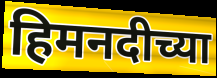
हिमनदीच्या